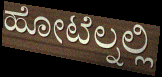
ಹೋಟೆಲ್ನಲ್ಲಿ